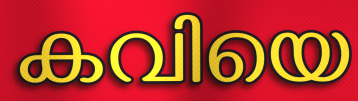
കവിയെ